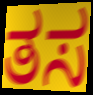
ತಸ